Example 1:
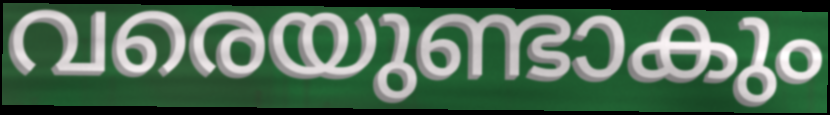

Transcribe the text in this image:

വരെയുണ്ടാകും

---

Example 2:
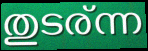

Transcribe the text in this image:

തുടര്ന്ന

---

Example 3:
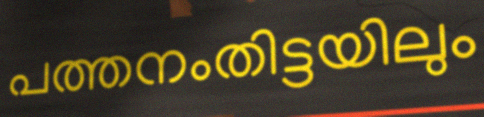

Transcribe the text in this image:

പത്തനംതിട്ടയിലും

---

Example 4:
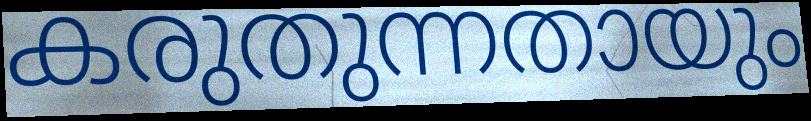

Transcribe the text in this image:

കരുതുന്നതായും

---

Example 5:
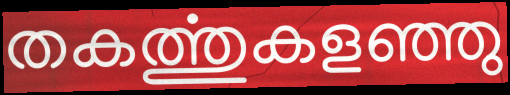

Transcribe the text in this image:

തകൎത്തുകളഞ്ഞു